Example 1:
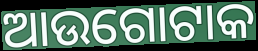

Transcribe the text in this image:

ଆଉଗୋଟାକ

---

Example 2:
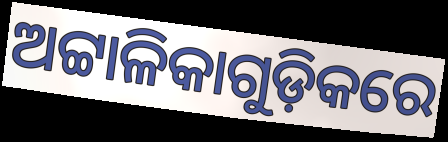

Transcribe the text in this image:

ଅଟ୍ଟାଳିକାଗୁଡ଼ିକରେ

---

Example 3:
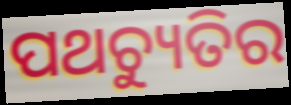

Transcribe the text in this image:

ପଥଚ୍ୟୁତିର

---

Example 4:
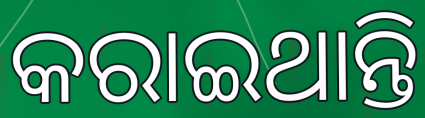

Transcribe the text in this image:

କରାଇଥାନ୍ତି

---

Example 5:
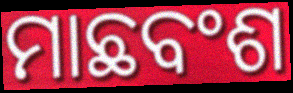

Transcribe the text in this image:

ମାଛବଂଶ